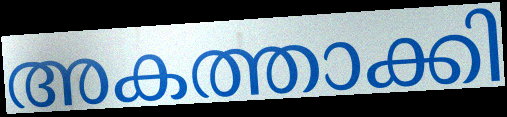
അകത്താക്കി